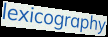
lexicography